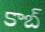
కాబ్